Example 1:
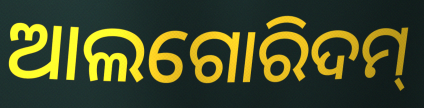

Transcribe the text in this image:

ଆଲଗୋରିଦମ୍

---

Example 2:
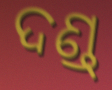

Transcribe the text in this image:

ଦଣ୍ଡ୍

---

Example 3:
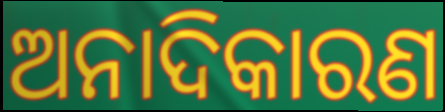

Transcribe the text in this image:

ଅନାଦିକାରଣ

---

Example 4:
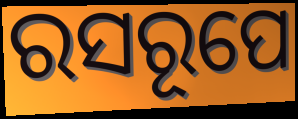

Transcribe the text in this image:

ରସରୂପେ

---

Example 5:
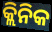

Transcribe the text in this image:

କ୍ଲିନିକ